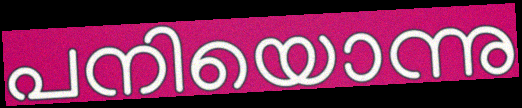
പനിയൊന്നു